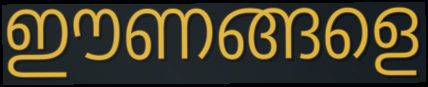
ഈണങ്ങളെ